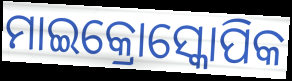
ମାଇକ୍ରୋସ୍କୋପିକ